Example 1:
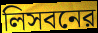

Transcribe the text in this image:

লিসবনের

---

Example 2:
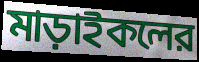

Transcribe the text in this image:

মাড়াইকলের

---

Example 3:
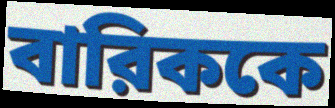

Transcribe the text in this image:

বারিককে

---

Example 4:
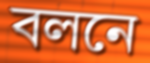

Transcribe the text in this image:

বলনে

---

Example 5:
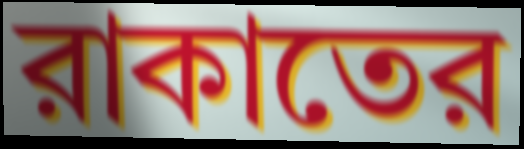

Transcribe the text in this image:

রাকাতের